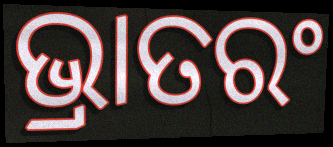
ଭ୍ରାତରଂ